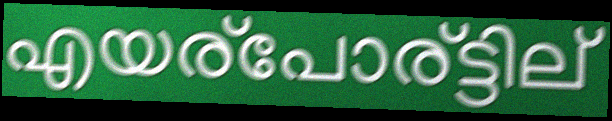
എയര്പോര്ട്ടില്